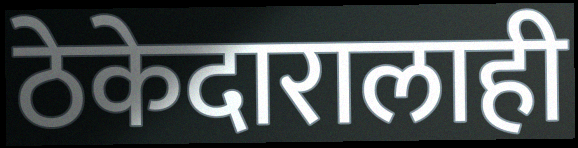
ठेकेदारालाही